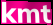
kmt